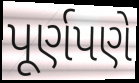
પૂર્ણપણે